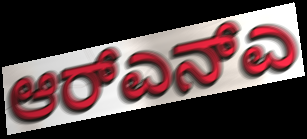
ಆರ್‌ಎನ್ಎ